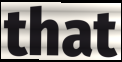
that